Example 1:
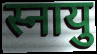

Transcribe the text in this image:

स्नायु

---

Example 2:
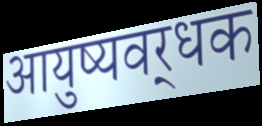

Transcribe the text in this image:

आयुष्यवर्धक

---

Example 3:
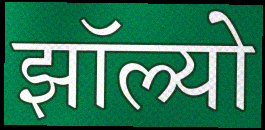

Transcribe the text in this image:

झॉल्यो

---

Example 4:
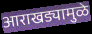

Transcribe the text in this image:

आराखड्यामुळे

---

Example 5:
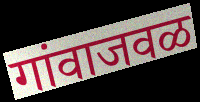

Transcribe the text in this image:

गांवाजवळ